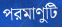
পরমাণুটি